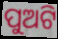
ପୁଅଟି